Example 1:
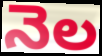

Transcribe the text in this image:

నెల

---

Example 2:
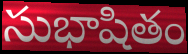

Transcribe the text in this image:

సుభాషితం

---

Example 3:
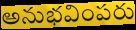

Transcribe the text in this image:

అనుభవింపరు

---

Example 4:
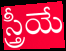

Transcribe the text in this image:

స్త్రీయే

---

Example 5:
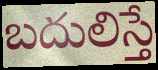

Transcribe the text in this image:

బదులిస్తే